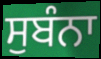
ਸੁਬੰਨਾ